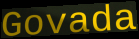
Govada